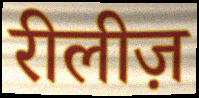
रीलीज़